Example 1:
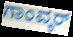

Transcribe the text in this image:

ಗಾಂವ್ಕರ್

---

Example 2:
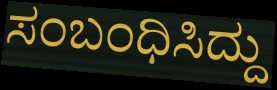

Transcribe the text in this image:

ಸಂಬಂಧಿಸಿದ್ದು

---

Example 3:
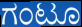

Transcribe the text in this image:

ಗಂಟೂ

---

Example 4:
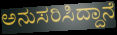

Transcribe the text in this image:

ಅನುಸರಿಸಿದ್ದಾನೆ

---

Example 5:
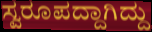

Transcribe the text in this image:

ಸ್ವರೂಪದ್ದಾಗಿದ್ದು